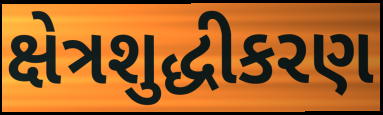
ક્ષેત્રશુદ્ધીકરણ